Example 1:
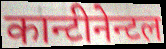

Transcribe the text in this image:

कान्टीनेन्टल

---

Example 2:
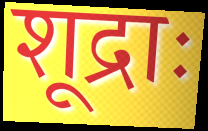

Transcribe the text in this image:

शूद्राः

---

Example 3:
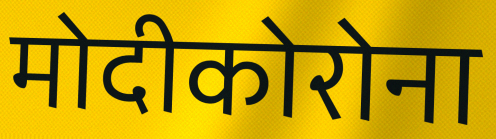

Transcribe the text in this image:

मोदीकोरोना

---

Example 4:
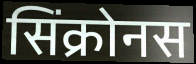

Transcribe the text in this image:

सिंक्रोनस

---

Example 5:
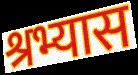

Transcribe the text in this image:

श्रभ्यास